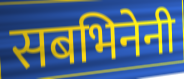
सबभिनेनी